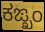
ಕಙ್ಖಂ